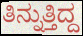
ತಿನ್ನುತ್ತಿದ್ದ